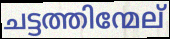
ചട്ടത്തിന്മേല്